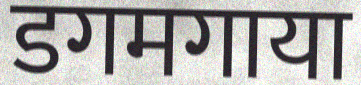
डगमगाया